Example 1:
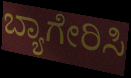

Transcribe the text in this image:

ಬ್ಯಾಗೇರಿಸಿ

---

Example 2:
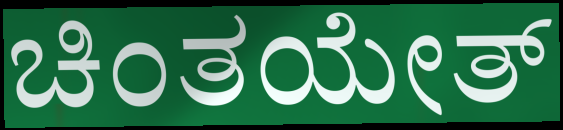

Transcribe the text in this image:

ಚಿಂತಯೇತ್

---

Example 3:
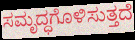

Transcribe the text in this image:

ಸಮೃದ್ಧಗೊಳಿಸುತ್ತದೆ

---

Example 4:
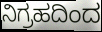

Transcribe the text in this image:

ನಿಗ್ರಹದಿಂದ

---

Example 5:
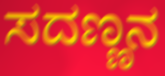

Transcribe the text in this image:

ಸದಣ್ಣನ